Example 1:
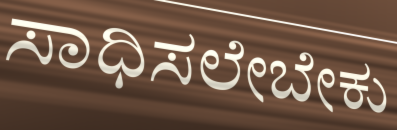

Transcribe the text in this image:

ಸಾಧಿಸಲೇಬೇಕು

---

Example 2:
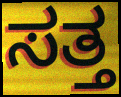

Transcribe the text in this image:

ಸತ್ತ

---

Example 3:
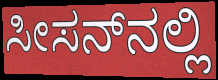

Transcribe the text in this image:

ಸೀಸನ್‌ನಲ್ಲಿ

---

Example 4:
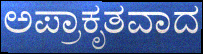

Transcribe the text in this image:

ಅಪ್ರಾಕೃತವಾದ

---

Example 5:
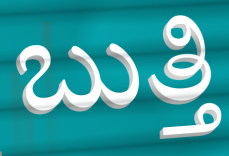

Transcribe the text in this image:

ಬುತ್ತಿ